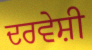
ਦਰਵੇਸ਼ੀ